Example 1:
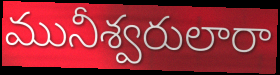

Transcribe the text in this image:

మునీశ్వరులారా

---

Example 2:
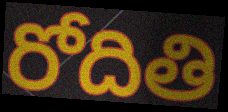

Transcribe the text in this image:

రోదితి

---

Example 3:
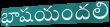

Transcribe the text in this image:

భాషయందలి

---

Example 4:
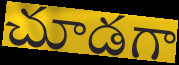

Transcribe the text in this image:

చూడగా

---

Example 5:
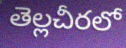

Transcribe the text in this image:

తెల్లచీరలో